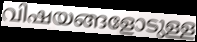
വിഷയങ്ങളോടുള്ള